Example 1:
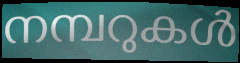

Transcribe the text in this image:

നമ്പറുകൾ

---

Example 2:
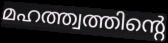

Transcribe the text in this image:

മഹത്ത്വത്തിന്റെ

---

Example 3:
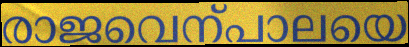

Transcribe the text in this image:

രാജവെന്പാലയെ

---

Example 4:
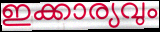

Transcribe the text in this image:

ഇക്കാര്യവും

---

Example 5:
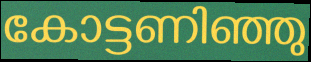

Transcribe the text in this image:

കോട്ടണിഞ്ഞു